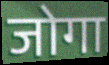
जोगा